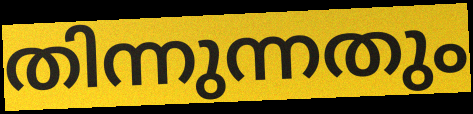
തിന്നുന്നതും